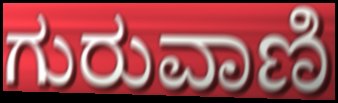
ಗುರುವಾಣಿ